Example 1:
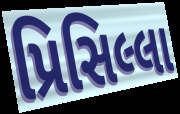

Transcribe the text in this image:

પ્રિસિલ્લા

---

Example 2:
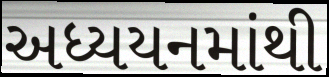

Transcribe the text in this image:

અધ્યયનમાંથી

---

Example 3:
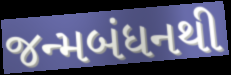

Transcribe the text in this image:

જન્મબંધનથી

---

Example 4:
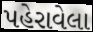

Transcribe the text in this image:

પહેરાવેલા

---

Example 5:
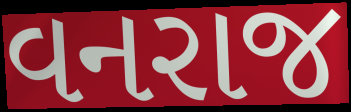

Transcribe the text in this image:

વનરાજ